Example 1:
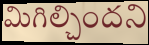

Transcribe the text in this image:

మిగిల్చిందని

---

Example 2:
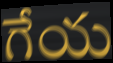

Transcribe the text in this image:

గేయ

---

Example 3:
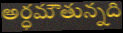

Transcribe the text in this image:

అర్ధమౌతున్నది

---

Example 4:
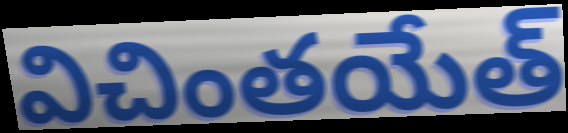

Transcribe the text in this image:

విచింతయేత్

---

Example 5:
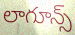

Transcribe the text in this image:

లాగూన్స్